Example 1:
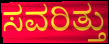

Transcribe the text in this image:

ಸವರಿತ್ತು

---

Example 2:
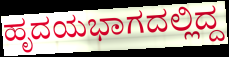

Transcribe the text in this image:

ಹೃದಯಭಾಗದಲ್ಲಿದ್ದ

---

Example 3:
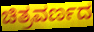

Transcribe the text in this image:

ಚಿತ್ರವರ್ಣದ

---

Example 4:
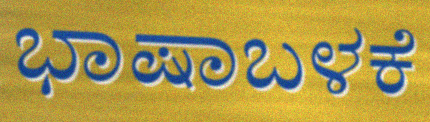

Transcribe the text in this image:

ಭಾಷಾಬಳಕೆ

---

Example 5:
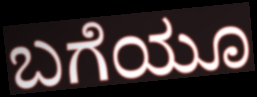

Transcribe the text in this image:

ಬಗೆಯೂ